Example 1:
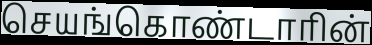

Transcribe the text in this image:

செயங்கொண்டாரின்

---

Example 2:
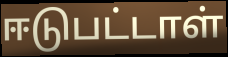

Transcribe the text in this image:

ஈடுபட்டாள்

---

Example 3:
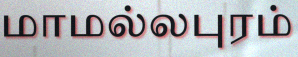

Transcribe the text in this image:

மாமல்லபுரம்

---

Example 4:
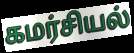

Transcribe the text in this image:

கமர்சியல்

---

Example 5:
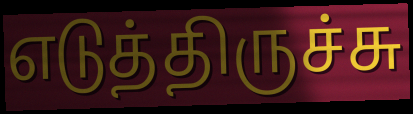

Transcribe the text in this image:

எடுத்திருச்சு